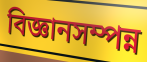
বিজ্ঞানসম্পন্ন